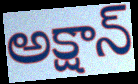
అక్షాన్